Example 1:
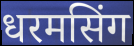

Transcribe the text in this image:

धरमसिंग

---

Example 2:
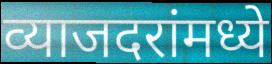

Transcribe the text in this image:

व्याजदरांमध्ये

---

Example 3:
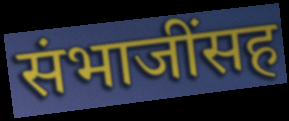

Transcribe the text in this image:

संभाजींसह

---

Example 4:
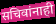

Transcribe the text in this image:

सचिवांनाही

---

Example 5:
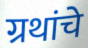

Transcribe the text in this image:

ग्रथांचे